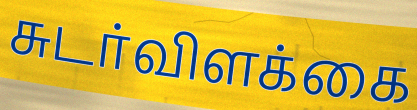
சுடர்விளக்கை